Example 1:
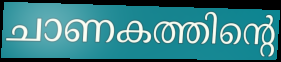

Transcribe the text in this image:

ചാണകത്തിന്റെ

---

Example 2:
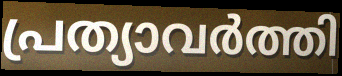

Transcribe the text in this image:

പ്രത്യാവർത്തി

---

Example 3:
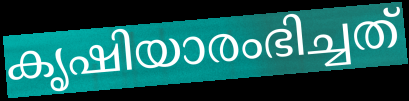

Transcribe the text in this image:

കൃഷിയാരംഭിച്ചത്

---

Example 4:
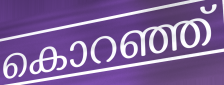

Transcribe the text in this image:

കൊറഞ്ഞ്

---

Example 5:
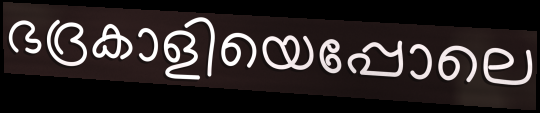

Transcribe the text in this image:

ഭദ്രകാളിയെപ്പോലെ